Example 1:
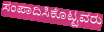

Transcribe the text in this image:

ಸಂಪಾದಿಸಿಕೊಟ್ಟವರು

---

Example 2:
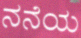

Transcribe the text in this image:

ನನೆಯ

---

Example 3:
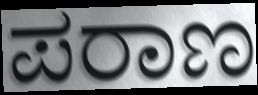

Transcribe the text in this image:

ಪರಾಣ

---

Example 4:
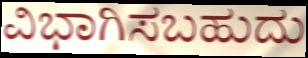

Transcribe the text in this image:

ವಿಭಾಗಿಸಬಹುದು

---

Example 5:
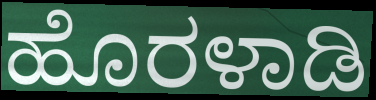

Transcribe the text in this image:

ಹೊರಳಾಡಿ